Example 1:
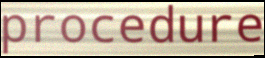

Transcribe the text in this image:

procedure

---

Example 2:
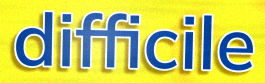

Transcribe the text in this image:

difficile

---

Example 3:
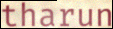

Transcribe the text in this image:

tharun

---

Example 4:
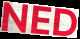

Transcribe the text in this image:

NED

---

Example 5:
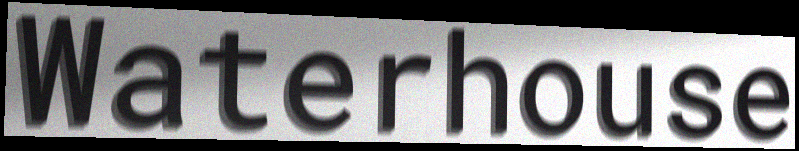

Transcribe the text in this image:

Waterhouse